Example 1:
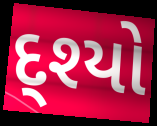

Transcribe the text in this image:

દ્શ્યો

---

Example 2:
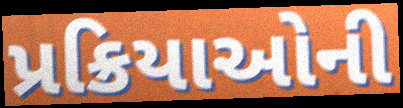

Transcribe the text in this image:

પ્રક્રિયાઓની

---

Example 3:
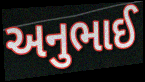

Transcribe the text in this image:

અનુભાઈ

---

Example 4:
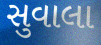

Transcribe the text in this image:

સુવાલા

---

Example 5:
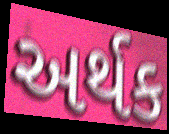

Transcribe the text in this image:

અર્થક